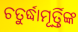
ଚତୁର୍ଦ୍ଧାମୂର୍ତ୍ତିଙ୍କ